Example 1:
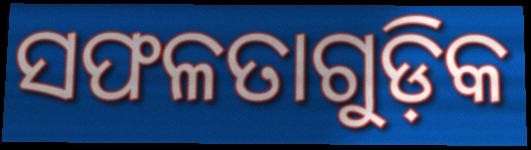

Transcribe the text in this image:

ସଫଳତାଗୁଡ଼ିକ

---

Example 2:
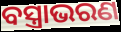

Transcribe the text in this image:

ବସ୍ତ୍ରାଭରଣ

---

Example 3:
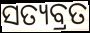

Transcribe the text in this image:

ସତ୍ୟବ୍ରତ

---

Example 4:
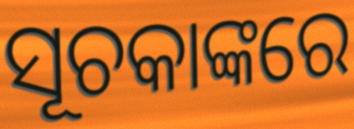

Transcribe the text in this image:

ସୂଚକାଙ୍କରେ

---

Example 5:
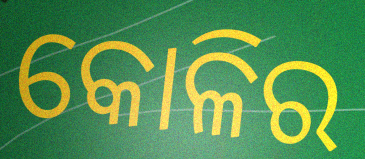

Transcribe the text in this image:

କୋଳିର